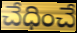
చేధించే